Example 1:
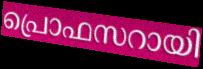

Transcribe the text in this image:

പ്രൊഫസറായി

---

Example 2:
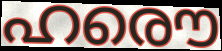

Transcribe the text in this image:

ഹരൌ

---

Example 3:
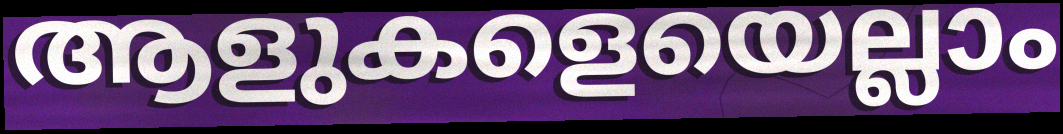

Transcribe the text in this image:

ആളുകളെയെല്ലാം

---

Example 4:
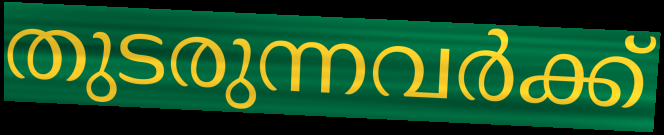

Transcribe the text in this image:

തുടരുന്നവർക്ക്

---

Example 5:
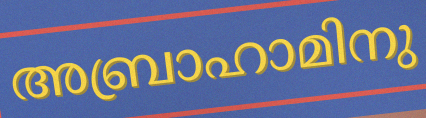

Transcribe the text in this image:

അബ്രാഹാമിനു